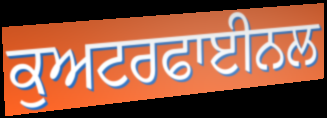
ਕੁਅਟਰਫਾਈਨਲ